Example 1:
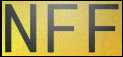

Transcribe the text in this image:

NFF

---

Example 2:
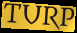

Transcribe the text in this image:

TURP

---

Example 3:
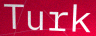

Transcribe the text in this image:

Turk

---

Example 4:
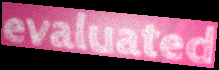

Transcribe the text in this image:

evaluated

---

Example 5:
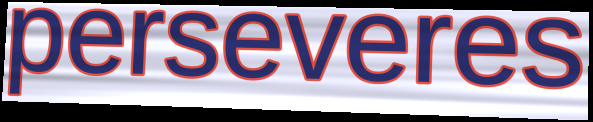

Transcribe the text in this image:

perseveres